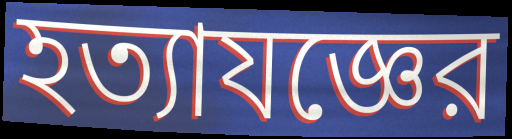
হত্যাযজ্ঞের